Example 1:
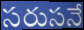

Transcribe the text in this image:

సరుసనే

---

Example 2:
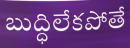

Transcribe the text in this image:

బుద్ధిలేకపోతే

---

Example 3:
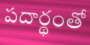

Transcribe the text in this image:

పదార్థంతో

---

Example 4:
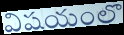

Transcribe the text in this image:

విషయంలొ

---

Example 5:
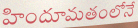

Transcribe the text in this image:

హిందూమతంలోనే